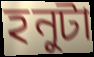
হনুটা